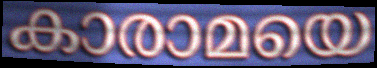
കാരാമയെ